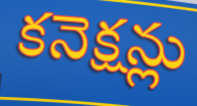
కనెక్షన్లు